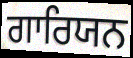
ਗਾਰਿਯਨ